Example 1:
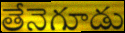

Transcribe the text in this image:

తేనెగూడు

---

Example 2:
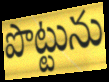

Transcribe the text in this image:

పొట్టును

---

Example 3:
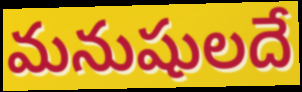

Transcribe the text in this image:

మనుషులదే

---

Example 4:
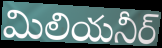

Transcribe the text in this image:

మిలియనీర్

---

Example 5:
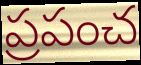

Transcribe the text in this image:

ప్రపంచ